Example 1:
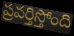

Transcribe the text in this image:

ప్రవర్తిస్తోంది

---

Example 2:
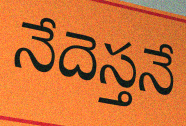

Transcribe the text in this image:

నేదెస్తనే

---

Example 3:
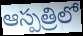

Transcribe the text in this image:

ఆస్పత్రిలో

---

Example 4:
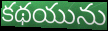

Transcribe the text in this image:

కథయును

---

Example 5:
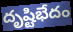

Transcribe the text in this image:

దృష్టిభేదం